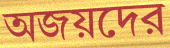
অজয়দের